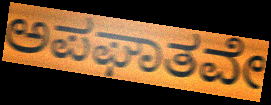
ಅಪಘಾತವೇ